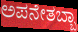
ಅಪನೇತಬ್ಬಾ